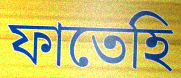
ফাতেহি